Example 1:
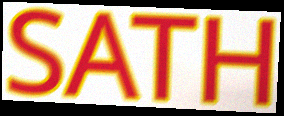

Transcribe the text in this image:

SATH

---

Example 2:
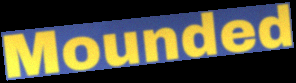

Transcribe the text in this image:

Mounded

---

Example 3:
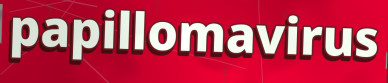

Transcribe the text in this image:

papillomavirus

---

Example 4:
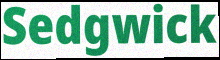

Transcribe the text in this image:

Sedgwick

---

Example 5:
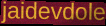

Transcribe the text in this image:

jaidevdole